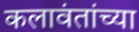
कलावंतांच्या